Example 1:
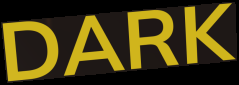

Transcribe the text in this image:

DARK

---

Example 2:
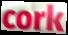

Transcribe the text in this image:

cork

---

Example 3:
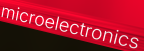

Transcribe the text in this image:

microelectronics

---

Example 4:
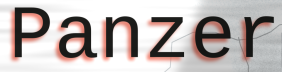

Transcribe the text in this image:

Panzer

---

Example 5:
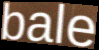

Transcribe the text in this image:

bale